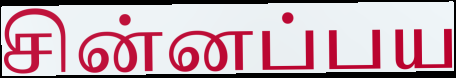
சின்னப்பய